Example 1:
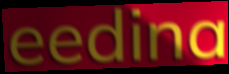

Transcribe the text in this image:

eedina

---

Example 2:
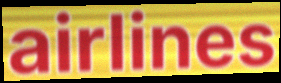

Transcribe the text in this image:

airlines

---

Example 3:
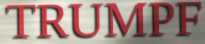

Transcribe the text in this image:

TRUMPF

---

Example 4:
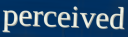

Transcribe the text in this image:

perceived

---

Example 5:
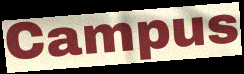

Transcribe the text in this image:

Campus